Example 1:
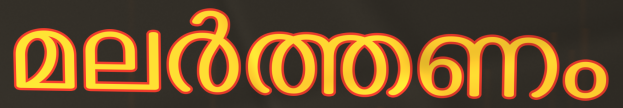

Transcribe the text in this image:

മലർത്തണം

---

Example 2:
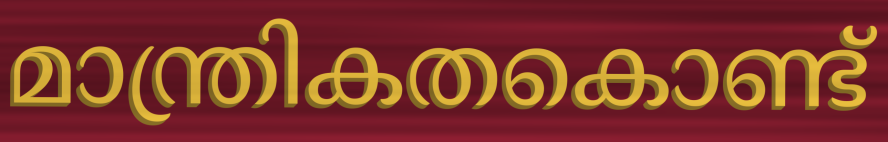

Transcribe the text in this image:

മാന്ത്രികതകൊണ്ട്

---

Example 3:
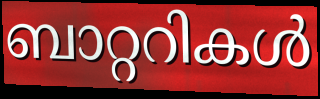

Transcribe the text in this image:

ബാറ്ററികൾ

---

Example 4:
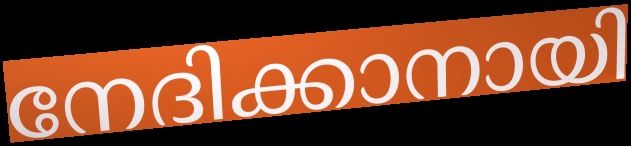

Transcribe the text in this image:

നേദിക്കാനായി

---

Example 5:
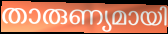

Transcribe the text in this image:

താരുണ്യമായി